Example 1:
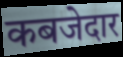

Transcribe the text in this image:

कबजेदार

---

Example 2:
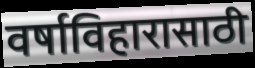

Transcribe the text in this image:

वर्षाविहारासाठी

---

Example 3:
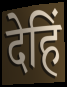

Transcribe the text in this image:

देहिं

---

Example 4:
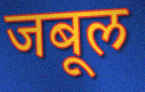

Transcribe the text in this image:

जबूल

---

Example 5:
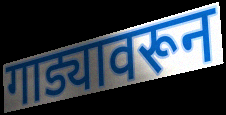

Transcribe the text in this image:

गाड्यावरून